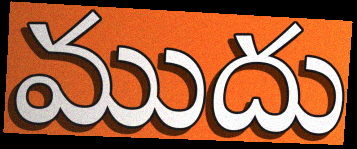
ముదు